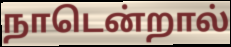
நாடென்றால்